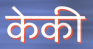
केकी